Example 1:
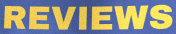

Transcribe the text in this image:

REVIEWS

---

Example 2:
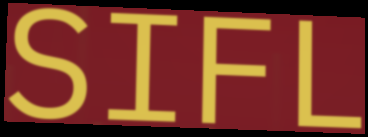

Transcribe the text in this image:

SIFL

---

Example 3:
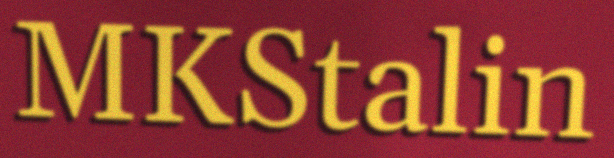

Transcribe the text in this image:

MKStalin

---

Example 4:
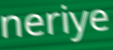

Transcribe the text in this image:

neriye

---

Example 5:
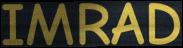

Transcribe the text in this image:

IMRAD